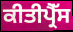
ਕੀਤੀਪ੍ਰੈੱਸ